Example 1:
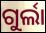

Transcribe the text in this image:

ଗୁର୍ଲା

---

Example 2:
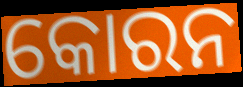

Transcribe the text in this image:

କୋରନ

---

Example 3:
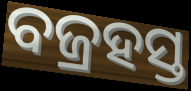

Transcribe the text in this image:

ବଜ୍ରହସ୍ତ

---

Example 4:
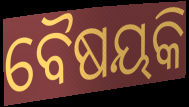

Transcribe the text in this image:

ବୈଷୟକି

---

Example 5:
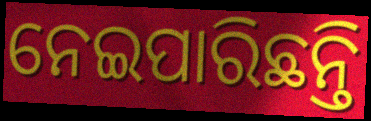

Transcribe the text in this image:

ନେଇପାରିଛନ୍ତି